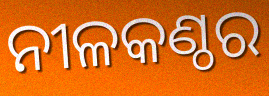
ନୀଳକଣ୍ଠର